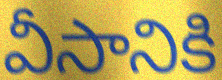
వీసానికి